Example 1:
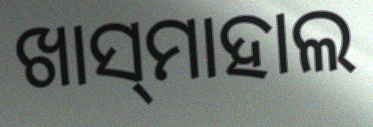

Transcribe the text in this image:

ଖାସ୍‌ମାହାଲ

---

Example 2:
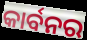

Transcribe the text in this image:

କାର୍ବନର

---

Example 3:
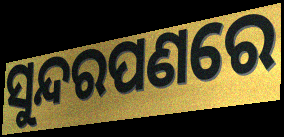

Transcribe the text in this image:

ସୁନ୍ଦରପଣରେ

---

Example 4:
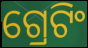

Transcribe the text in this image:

ଗ୍ରେଟିଂ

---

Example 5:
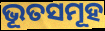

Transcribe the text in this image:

ଭୂତସମୂହ